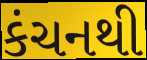
કંચનથી